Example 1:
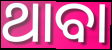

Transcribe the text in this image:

ଥାବା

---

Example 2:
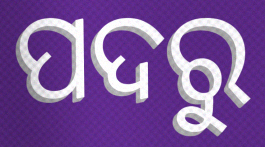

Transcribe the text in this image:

ପଦରୁ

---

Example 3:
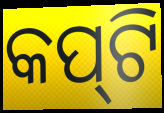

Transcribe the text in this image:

କପ୍‌ଟି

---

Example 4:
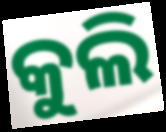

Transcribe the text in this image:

କୁଲି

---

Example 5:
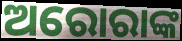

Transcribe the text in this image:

ଅରୋରାଙ୍କ